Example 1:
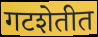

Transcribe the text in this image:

गटशेतीत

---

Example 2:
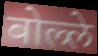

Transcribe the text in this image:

बोल्ले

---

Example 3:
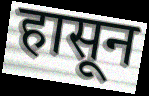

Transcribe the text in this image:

हासून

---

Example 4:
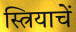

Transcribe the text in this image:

स्त्रियाचें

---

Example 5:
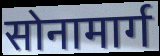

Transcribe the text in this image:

सोनामार्ग